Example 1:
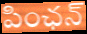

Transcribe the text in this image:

పింఛన్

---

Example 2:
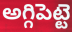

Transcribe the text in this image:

అగ్గిపెట్టె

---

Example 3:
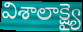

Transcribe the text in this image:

విశాలాక్ష్యై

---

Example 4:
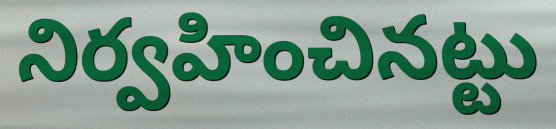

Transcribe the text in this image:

నిర్వహించినట్టు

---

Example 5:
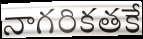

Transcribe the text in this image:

నాగరికతకే